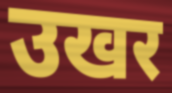
उखर